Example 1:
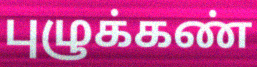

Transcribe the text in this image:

புழுக்கண்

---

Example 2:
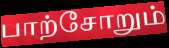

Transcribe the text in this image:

பாற்சோறும்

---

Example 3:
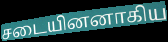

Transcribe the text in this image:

சடையினனாகிய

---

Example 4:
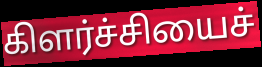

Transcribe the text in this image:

கிளர்ச்சியைச்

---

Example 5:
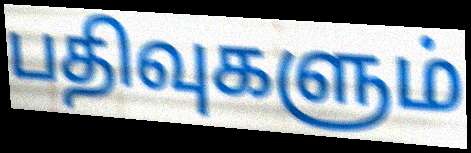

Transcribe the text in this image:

பதிவுகளும்